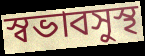
স্বভাবসুস্থ